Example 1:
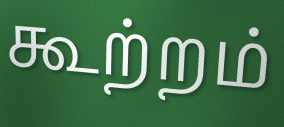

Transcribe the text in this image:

கூற்றம்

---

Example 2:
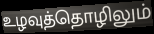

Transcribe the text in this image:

உழவுத்தொழிலும்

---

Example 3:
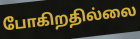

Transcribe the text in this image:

போகிறதில்லை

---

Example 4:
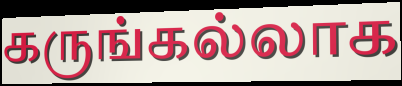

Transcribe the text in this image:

கருங்கல்லாக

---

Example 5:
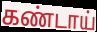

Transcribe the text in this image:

கண்டாய்